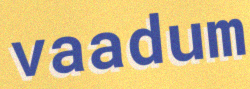
vaadum